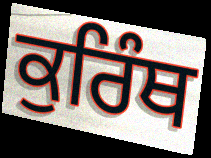
ਕੁਰਿੰਥ